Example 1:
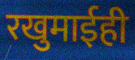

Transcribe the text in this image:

रखुमाईही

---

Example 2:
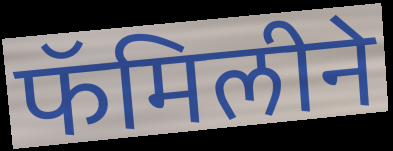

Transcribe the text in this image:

फॅमिलीने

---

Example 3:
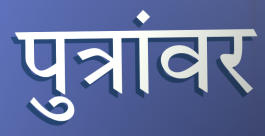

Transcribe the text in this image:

पुत्रांवर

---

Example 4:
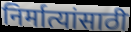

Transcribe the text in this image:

निर्मात्यांसाठी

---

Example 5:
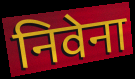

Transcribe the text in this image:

निवेना